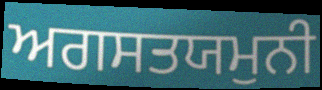
ਅਗਸਤਯਮੁਨੀ